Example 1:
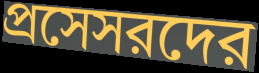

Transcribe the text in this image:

প্রসেসরদের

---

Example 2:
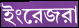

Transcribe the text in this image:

ইংরেজরা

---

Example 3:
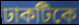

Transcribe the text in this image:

ঢাকটিকে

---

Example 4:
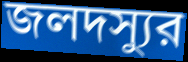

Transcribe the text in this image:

জলদস্যুর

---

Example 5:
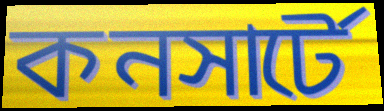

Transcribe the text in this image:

কনসার্টে